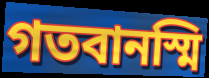
গতবানস্মি